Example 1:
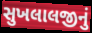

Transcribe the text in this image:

સુખલાલજીનું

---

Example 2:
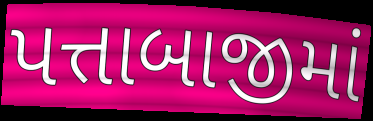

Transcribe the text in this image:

પત્તાબાજીમાં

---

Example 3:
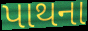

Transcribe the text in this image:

પાથના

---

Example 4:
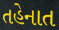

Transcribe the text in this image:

તહેનાત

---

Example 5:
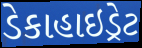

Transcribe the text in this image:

ડેકાહાઇડ્રેટ